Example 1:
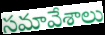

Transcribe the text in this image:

సమావేశాలు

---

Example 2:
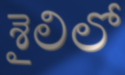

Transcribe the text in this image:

శైలిలో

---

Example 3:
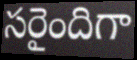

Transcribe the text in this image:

సరైందిగా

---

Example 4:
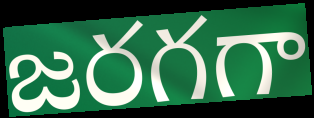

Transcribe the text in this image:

జరగగా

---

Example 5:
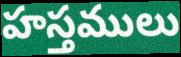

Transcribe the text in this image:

హస్తములు